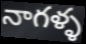
నాగళ్ళ